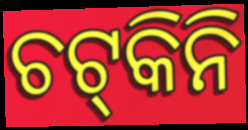
ଚଟ୍‍କିନି